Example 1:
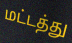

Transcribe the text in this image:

மட்டத்து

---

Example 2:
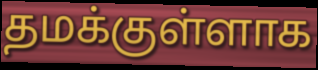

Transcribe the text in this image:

தமக்குள்ளாக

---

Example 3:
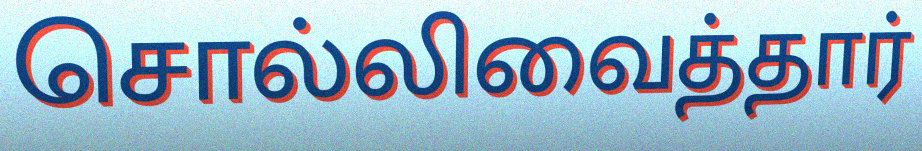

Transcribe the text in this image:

சொல்லிவைத்தார்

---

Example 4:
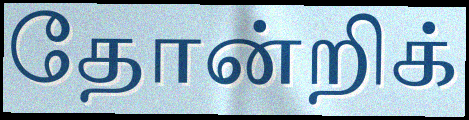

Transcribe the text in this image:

தோன்றிக்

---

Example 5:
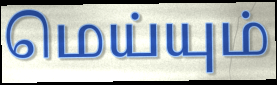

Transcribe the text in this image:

மெய்யும்